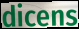
dicens